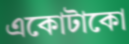
একোটাকো